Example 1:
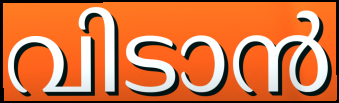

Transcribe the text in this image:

വിടാൻ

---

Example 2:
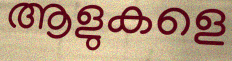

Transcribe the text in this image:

ആളുകളെ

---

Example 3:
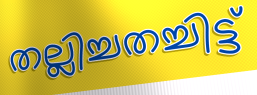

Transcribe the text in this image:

തല്ലിച്ചതച്ചിട്ട്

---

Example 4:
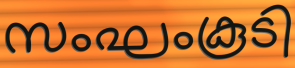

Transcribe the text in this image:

സംഘംകൂടി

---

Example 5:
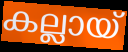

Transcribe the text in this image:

കല്ലായ്